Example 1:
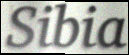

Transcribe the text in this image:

Sibia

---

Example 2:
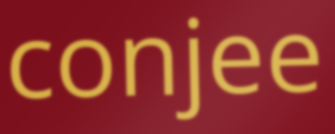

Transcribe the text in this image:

conjee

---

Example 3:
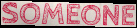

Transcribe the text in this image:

SOMEONE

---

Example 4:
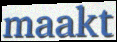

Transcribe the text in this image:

maakt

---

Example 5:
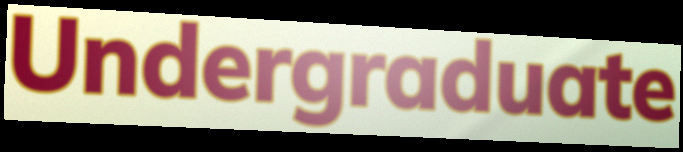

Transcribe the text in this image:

Undergraduate